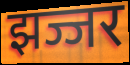
झज्जर